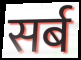
सर्ब